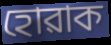
হোৱাক